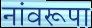
नांवरूपा